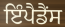
ਇੰਪੈਡੈਂਸ